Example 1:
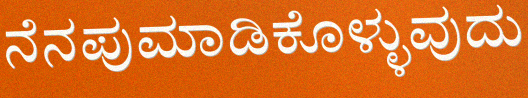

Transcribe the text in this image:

ನೆನಪುಮಾಡಿಕೊಳ್ಳುವುದು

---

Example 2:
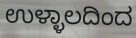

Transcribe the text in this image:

ಉಳ್ಳಾಲದಿಂದ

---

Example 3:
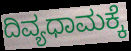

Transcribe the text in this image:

ದಿವ್ಯಧಾಮಕ್ಕೆ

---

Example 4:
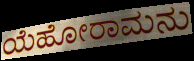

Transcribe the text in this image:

ಯೆಹೋರಾಮನು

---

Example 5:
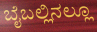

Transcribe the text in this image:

ಬೈಬಲ್ಲಿನಲ್ಲೂ